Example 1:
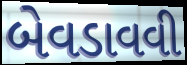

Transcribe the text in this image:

બેવડાવવી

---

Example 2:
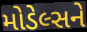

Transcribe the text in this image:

મોડેલ્સને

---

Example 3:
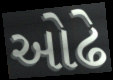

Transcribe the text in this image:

ઓઢે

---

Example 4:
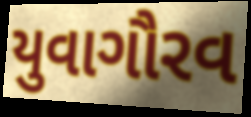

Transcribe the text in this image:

યુવાગૌરવ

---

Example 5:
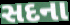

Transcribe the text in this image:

સદના